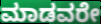
ಮಾಡವರೇ